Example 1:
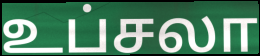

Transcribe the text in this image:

உப்சலா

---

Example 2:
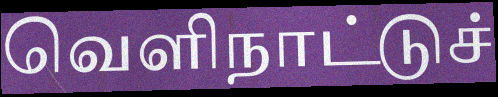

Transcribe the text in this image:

வெளிநாட்டுச்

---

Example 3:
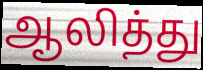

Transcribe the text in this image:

ஆலித்து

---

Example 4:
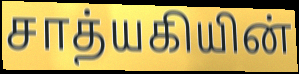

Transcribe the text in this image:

சாத்யகியின்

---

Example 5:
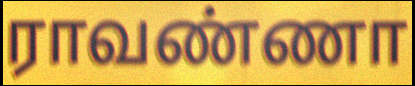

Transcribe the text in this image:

ராவண்ணா